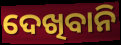
ଦେଖିବାନି